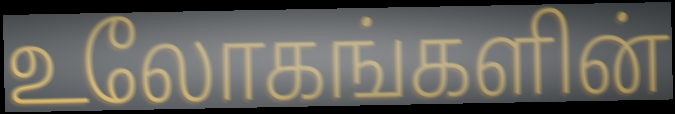
உலோகங்களின்